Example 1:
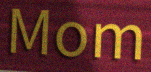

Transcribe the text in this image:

Mom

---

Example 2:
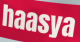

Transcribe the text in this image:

haasya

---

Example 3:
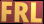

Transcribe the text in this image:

FRL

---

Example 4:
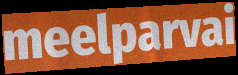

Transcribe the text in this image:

meelparvai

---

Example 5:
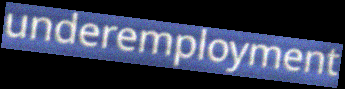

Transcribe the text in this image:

underemployment